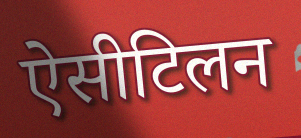
ऐसीटिलन